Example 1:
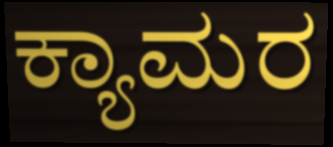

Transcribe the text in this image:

ಕ್ಯಾಮರ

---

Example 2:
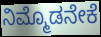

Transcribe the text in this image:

ನಿಮ್ಮೊಡನೇಕೆ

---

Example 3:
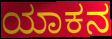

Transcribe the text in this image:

ಯಾಕನ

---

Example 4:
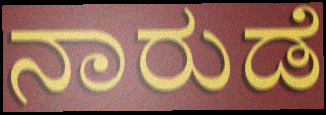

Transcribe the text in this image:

ನಾರುಡೆ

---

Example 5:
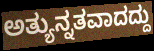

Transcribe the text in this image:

ಅತ್ಯುನ್ನತವಾದದ್ದು